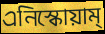
এনিস্কোয়াম্